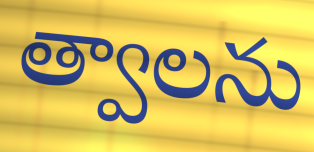
త్వాలను